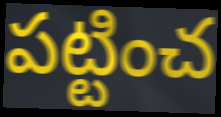
పట్టించ